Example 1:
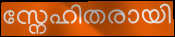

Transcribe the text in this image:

സ്നേഹിതരായി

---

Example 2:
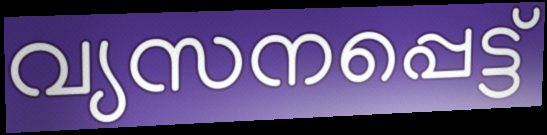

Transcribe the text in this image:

വ്യസനപ്പെട്ട്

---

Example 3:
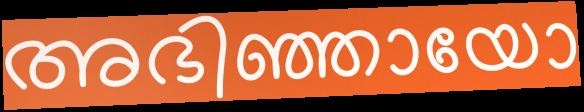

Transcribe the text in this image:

അഭിഞ്ഞായോ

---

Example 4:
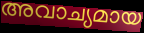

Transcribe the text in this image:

അവാച്യമായ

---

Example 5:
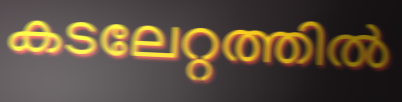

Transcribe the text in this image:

കടലേറ്റത്തിൽ